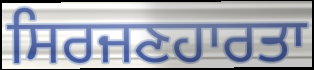
ਸਿਰਜਣਹਾਰਤਾ